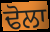
ਢੋਲਾ